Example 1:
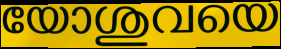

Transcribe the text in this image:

യോശുവയെ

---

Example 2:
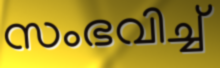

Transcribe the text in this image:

സംഭവിച്ച്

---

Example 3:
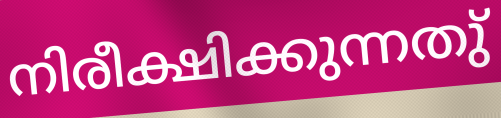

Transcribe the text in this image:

നിരീക്ഷിക്കുന്നതു്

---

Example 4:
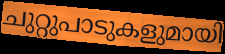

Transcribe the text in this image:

ചുറ്റുപാടുകളുമായി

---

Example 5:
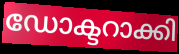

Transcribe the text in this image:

ഡോക്ടറാക്കി